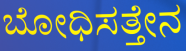
ಬೋಧಿಸತ್ತೇನ